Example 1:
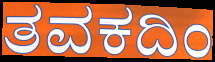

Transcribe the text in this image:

ತವಕದಿಂ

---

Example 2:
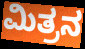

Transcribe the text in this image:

ಮಿತ್ರನ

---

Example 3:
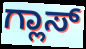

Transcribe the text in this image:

ಗ್ಲಾಸ್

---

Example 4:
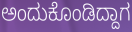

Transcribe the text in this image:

ಅಂದುಕೊಂಡಿದ್ದಾಗ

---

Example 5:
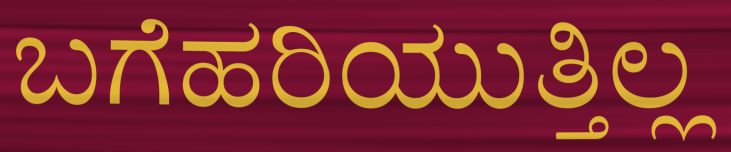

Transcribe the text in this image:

ಬಗೆಹರಿಯುತ್ತಿಲ್ಲ